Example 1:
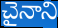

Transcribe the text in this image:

చైనాని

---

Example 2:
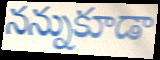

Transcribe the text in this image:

నన్నుకూడా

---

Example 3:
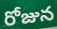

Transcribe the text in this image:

రోజున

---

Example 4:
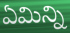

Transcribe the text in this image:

ఏమిన్ని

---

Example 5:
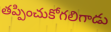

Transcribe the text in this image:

తప్పించుకోగలిగాడు